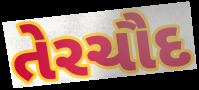
તેરચૌદ